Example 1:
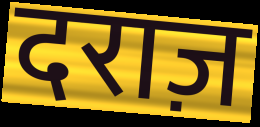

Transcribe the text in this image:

दराज़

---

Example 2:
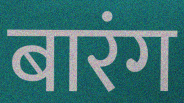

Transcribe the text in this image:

बारंग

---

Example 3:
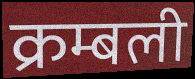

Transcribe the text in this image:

क्रम्बली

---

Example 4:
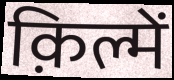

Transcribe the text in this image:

क़िल्में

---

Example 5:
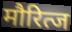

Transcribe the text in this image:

मौरित्ज